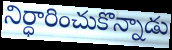
నిర్ధారించుకొన్నాడు